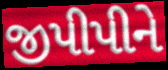
જીપીપીને